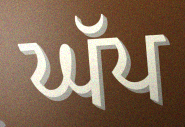
ਘੱਪ